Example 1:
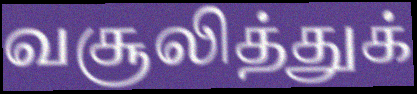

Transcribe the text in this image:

வசூலித்துக்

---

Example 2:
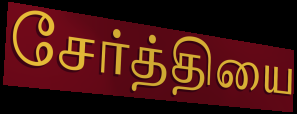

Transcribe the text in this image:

சேர்த்தியை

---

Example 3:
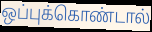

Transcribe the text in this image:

ஒப்புக்கொண்டால்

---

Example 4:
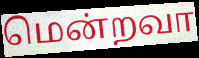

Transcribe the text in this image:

மென்றவா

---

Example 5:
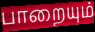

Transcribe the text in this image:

பாறையும்